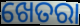
ଖେତରା